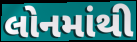
લોનમાંથી